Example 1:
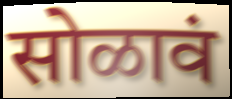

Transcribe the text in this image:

सोळावं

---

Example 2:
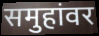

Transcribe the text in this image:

समुहांवर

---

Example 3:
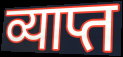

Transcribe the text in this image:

व्याप्त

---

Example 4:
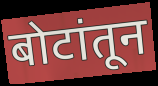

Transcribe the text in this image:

बोटांतून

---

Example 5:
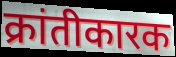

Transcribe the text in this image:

क्रांतीकारक